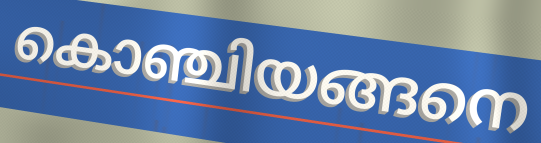
കൊഞ്ചിയങ്ങനെ